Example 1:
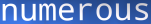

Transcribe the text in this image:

numerous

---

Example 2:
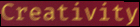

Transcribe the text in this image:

Creativity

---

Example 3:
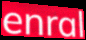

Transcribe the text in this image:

enral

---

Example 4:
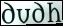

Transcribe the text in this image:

dudh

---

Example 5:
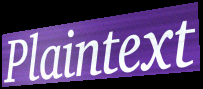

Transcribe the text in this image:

Plaintext